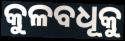
କୁଳବଧୂକୁ